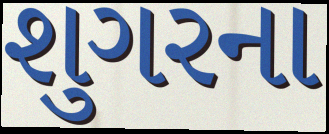
શુગરના